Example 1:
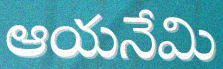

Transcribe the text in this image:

ఆయనేమి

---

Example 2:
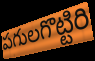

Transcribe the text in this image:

పగులగొట్టిరి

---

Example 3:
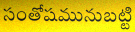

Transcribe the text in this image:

సంతోషమునుబట్టి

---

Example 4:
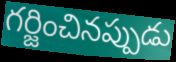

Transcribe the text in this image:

గర్జించినప్పుడు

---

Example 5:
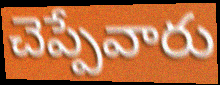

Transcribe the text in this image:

చెప్పేవారు